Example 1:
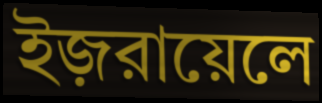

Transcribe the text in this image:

ইজ়রায়েলে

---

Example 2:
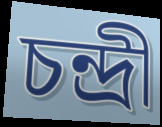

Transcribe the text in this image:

চন্দ্রী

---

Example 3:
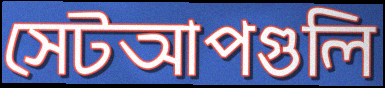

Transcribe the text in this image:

সেটআপগুলি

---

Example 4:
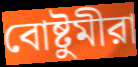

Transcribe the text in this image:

বোষ্টুমীরা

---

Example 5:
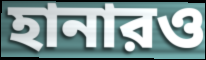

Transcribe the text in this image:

হানারও